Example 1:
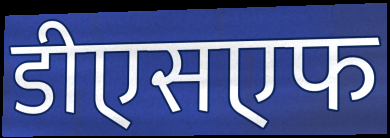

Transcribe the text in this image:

डीएसएफ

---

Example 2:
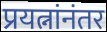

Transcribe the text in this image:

प्रयत्नांनंतर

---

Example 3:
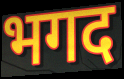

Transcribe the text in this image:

भगद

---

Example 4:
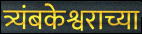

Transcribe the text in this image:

त्र्यंबकेश्वराच्या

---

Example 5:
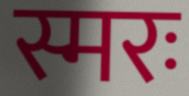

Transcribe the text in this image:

स्मरः